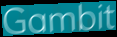
Gambit